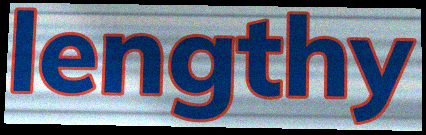
lengthy